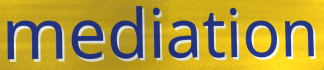
mediation